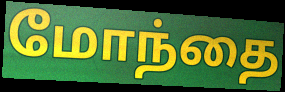
மோந்தை